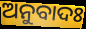
ଅନୁବାଦଃ